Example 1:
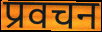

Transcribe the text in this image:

प्रवचन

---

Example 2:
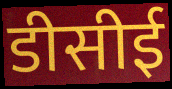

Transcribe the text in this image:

डीसीई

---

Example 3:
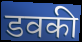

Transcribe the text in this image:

डवकी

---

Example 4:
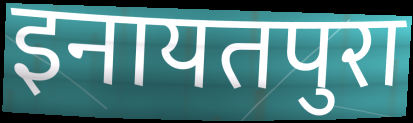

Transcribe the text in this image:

इनायतपुरा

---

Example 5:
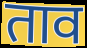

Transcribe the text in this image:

ताव